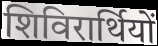
शिविरार्थियों